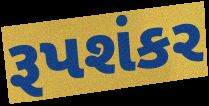
રૂપશંકર